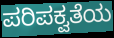
ಪರಿಪಕ್ವತೆಯ